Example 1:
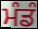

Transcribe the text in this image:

ਮੰਡੰ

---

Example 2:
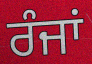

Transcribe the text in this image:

ਰੰਜਾਂ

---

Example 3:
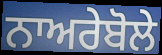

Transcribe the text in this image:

ਨਾਅਰੇਬੋਲੇ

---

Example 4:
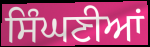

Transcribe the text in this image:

ਸਿੰਘਣੀਆਂ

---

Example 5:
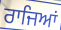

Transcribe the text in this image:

ਰਾਜਿਆਂ